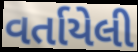
વર્તાયેલી